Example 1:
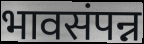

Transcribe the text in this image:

भावसंपन्न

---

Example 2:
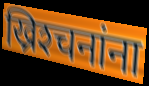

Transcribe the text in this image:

ख्रिश्‍चनांना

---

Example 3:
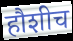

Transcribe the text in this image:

हौशीच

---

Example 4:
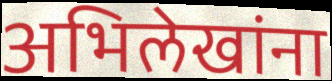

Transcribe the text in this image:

अभिलेखांना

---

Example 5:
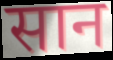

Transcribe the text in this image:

सान